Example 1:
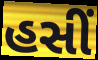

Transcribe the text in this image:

હસીં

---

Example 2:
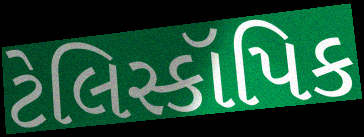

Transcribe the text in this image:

ટેલિસ્કૉપિક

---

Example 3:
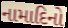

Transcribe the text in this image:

નામાદિનો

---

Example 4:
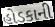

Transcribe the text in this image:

હોડકાની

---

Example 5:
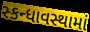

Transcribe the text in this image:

સ્કન્ધાવસ્થામાં